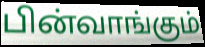
பின்வாங்கும்